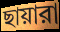
ছায়ারা